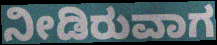
ನೀಡಿರುವಾಗ